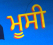
ਮੂਸੀ